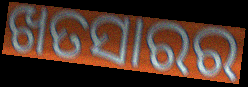
ଖତସାରର